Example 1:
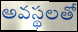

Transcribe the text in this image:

అవస్థలతో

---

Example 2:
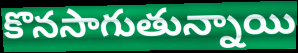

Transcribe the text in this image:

కొనసాగుతున్నాయి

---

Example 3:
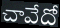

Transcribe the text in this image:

చావేదో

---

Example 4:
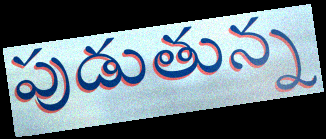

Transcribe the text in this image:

పుడుతున్న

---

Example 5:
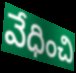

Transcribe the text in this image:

వేధించి